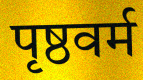
पृष्ठवर्म